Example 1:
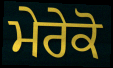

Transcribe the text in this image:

ਮੇਰੇਕੋ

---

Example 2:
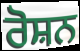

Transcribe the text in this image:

ਰੋਸ਼ਨ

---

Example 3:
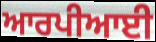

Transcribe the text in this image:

ਆਰਪੀਆਈ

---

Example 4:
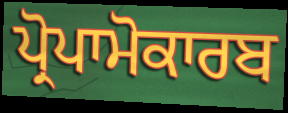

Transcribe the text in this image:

ਪ੍ਰੋਪਾਮੋਕਾਰਬ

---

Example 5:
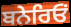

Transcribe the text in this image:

ਬਨੇਰਿਓਂ